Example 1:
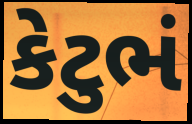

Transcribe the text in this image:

કેટુભં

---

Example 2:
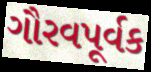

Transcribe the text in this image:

ગૌરવપૂર્વક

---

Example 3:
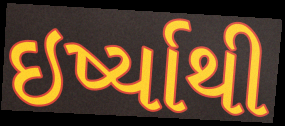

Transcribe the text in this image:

ઇર્ષ્યાથી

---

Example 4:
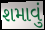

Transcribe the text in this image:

શમાવું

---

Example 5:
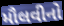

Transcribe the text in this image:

મૌલવીનો